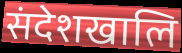
संदेशखालि